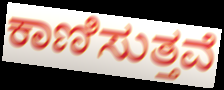
ಕಾಣಿಸುತ್ತವೆ